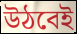
উঠবেই